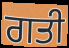
ਗਤੀ